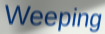
Weeping